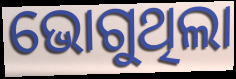
ଭୋଗୁଥିଲା